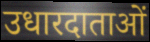
उधारदाताओं